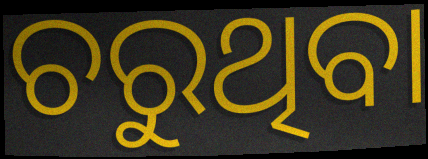
ଚରୁଥିବା